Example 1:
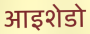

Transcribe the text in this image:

आइशेडो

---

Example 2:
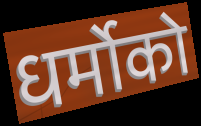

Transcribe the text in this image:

धर्मोको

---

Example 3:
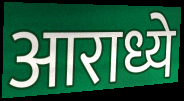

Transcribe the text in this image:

आराध्ये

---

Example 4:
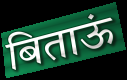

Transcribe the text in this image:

बिताऊं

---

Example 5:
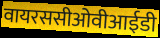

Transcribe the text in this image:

वायरससीओवीआईडी